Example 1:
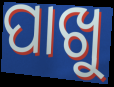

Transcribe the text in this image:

ପାଖୁ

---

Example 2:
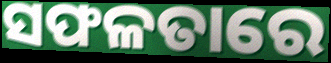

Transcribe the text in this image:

ସଫଳତାରେ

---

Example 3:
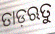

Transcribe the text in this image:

ତାଡ଼ଋତୁ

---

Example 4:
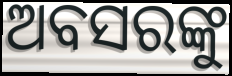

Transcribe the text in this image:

ଅବସରଙ୍କୁ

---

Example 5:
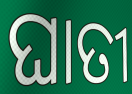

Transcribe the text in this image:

ଘାତୀ